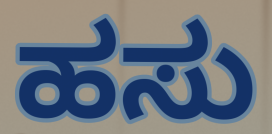
ಹಸು